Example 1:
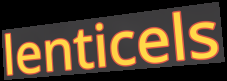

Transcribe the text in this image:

lenticels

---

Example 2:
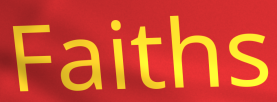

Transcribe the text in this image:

Faiths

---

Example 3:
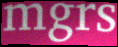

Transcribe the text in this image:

mgrs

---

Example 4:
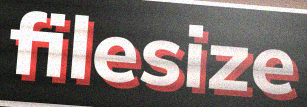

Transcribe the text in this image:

filesize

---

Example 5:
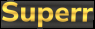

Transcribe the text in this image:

Superr